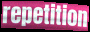
repetition